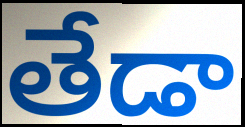
తేడా